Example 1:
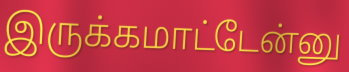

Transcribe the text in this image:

இருக்கமாட்டேன்னு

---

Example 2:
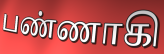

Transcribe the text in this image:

பண்ணாகி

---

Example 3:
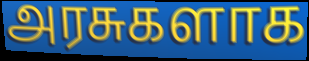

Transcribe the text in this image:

அரசுகளாக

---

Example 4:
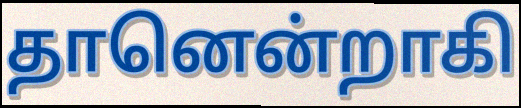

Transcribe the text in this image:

தானென்றாகி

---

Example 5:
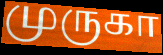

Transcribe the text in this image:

முருகா